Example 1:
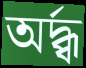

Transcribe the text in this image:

অর্দ্ধ্ব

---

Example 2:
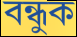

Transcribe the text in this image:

বন্ধুক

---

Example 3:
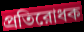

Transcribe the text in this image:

প্রতিরোধক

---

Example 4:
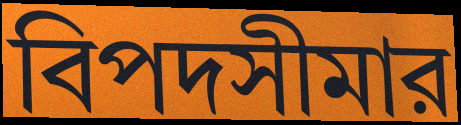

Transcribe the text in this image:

বিপদসীমার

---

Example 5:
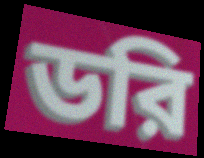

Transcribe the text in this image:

ডরি